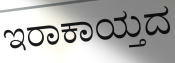
ಇರಾಕಾಯ್ತದ